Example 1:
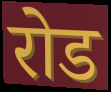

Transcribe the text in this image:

रोड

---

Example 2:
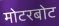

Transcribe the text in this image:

मोटरबोट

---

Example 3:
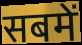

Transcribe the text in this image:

सबमें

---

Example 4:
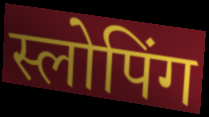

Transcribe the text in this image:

स्लोपिंग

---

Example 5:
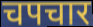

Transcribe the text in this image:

चपचार